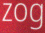
zog